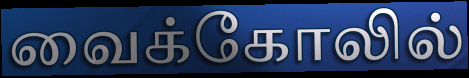
வைக்கோலில்